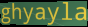
ghyayla